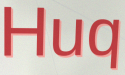
Huq